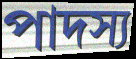
পাদস্য